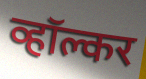
व्हॉल्कर